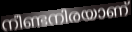
നീണ്ടനിരയാണ്